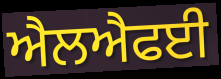
ਐਲਐਫਈ